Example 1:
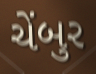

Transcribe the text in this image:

ચેંબુર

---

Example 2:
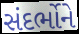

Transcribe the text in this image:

સંદર્ભોને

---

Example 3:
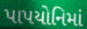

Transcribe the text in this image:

પાપયોનિમાં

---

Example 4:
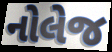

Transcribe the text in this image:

નોલેજ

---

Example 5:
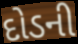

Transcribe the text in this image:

દોડની